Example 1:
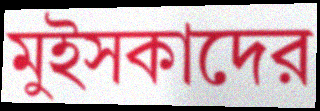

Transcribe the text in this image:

মুইসকাদের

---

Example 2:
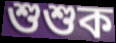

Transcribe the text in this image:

শুশুক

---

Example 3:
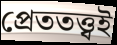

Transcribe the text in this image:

প্রেততত্ত্বই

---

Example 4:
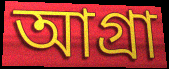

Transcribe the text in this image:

আগ্রা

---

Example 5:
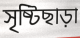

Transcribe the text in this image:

সৃষ্টিছাড়া